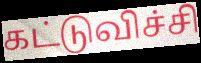
கட்டுவிச்சி